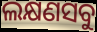
ଲକ୍ଷଣସବୁ